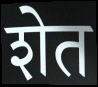
शेत